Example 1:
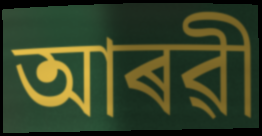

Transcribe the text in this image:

আৰৱী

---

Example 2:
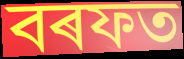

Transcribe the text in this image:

বৰফত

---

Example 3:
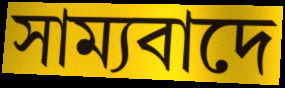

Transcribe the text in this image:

সাম্যবাদে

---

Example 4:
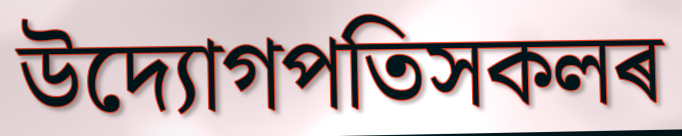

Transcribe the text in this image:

উদ্যোগপতিসকলৰ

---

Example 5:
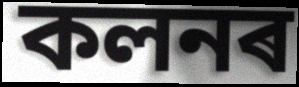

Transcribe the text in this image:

কলনৰ